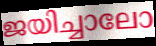
ജയിച്ചാലോ